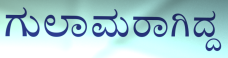
ಗುಲಾಮರಾಗಿದ್ದ